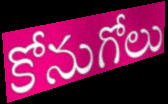
కోనుగోలు